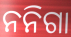
ନନିଗା